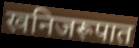
खनिजरूपात